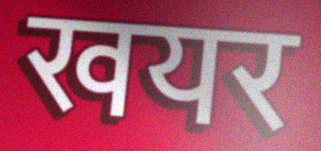
खयर